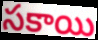
సకాయి